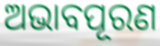
ଅଭାବପୂରଣ